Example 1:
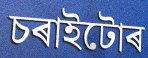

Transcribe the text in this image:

চৰাইটোৰ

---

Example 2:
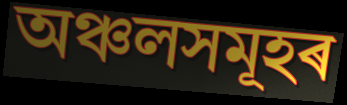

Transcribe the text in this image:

অঞ্চলসমূহৰ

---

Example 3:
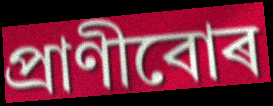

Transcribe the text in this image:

প্ৰাণীবোৰ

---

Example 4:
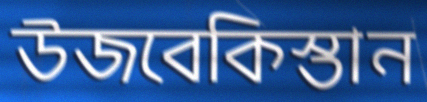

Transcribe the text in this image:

উজবেকিস্তান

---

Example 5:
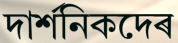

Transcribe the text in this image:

দাৰ্শনিকদেৰ